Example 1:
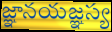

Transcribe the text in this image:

జ్ఞానయజ్ఞస్య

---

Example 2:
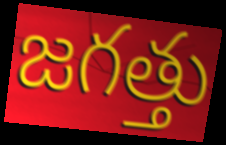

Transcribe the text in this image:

జగత్తు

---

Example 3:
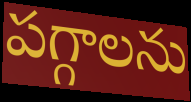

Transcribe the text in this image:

పగ్గాలను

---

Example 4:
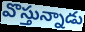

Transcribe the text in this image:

వొస్తున్నాడు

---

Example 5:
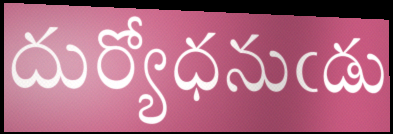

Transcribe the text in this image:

దుర్యోధనుఁడు